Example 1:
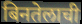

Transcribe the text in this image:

बिनतेलाची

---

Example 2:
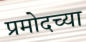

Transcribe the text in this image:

प्रमोदच्या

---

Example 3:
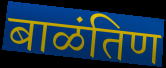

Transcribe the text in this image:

बाळंतिण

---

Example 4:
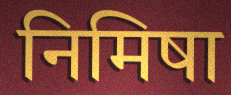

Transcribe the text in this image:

निमिषा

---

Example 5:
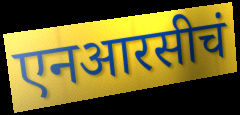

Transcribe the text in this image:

एनआरसीचं